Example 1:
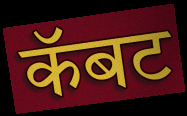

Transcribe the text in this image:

कॅबट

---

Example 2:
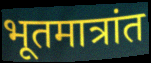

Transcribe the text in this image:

भूतमात्रांत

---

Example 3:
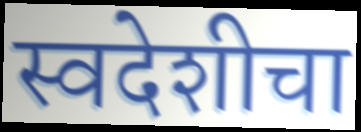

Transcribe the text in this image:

स्वदेशीचा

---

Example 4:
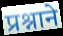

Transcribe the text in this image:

प्रश्नाने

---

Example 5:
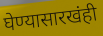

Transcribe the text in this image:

घेण्यासारखंही